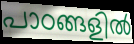
പാഠങ്ങളിൽ